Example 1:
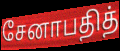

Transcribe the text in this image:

சேனாபதித்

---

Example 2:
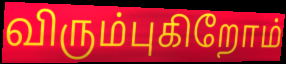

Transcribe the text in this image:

விரும்புகிறோம்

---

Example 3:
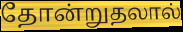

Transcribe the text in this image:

தோன்றுதலால்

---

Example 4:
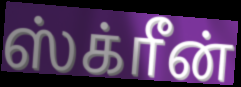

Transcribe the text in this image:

ஸ்க்ரீன்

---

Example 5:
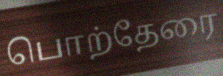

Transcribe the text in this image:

பொற்தேரை